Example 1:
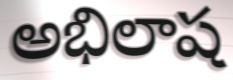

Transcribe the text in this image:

అభిలాష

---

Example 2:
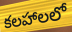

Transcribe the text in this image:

కలహాలలో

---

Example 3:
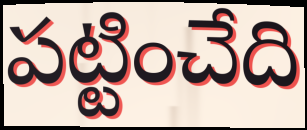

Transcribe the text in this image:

పట్టించేది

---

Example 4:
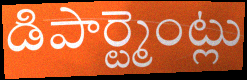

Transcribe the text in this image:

డిపార్ట్మెంట్లు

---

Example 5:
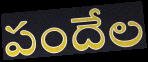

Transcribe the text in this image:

పందేల